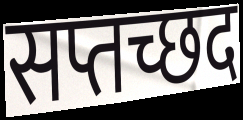
सप्तच्छद